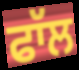
ਫਾੱਲ